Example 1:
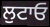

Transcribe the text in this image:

ਲੁਟਾਓ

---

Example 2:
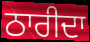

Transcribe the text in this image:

ਠਾਰੀਦਾ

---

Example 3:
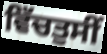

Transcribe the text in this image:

ਵਿੱਚਤੁਸੀਂ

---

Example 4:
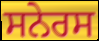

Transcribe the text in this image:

ਸਨੇਰਸ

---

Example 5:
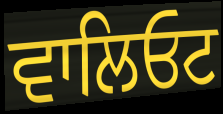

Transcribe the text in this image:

ਵਾਲਿਓਟ